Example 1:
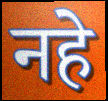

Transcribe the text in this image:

नहे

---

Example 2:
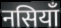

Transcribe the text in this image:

नसियाँ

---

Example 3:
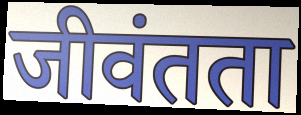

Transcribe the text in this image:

जीवंतता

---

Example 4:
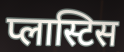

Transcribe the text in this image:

प्लास्टिस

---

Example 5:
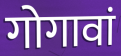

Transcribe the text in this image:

गोगावां